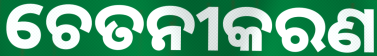
ଚେତନୀକରଣ